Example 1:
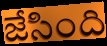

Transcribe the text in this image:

జేసింది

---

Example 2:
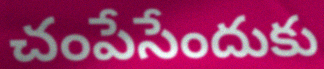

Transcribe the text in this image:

చంపేసేందుకు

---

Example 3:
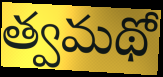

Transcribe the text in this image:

త్వమథో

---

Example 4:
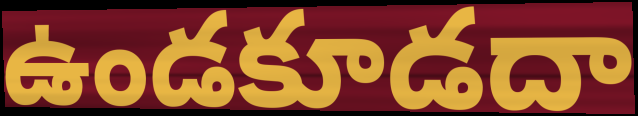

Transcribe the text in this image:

ఉండకూడదా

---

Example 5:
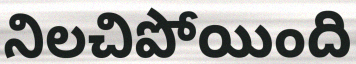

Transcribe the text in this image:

నిలచిపోయింది